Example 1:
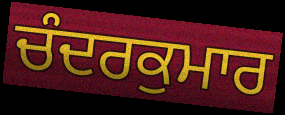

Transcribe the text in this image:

ਚੰਦਰਕੁਮਾਰ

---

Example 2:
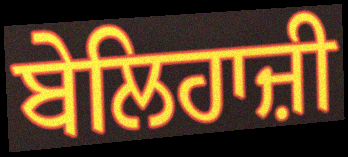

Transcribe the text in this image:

ਬੇਲਿਹਾਜ਼ੀ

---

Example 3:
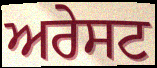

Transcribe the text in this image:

ਅਰੇਸਟ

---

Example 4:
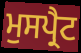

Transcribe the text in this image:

ਮੁਸਪ੍ਰੈਟ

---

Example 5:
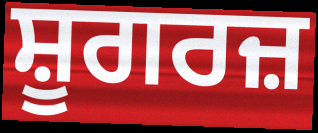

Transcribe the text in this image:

ਸ਼ੂਗਰਜ਼